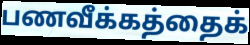
பணவீக்கத்தைக்